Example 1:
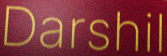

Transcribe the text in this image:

Darshil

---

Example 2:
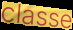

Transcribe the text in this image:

classe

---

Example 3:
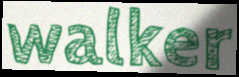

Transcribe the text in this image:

walker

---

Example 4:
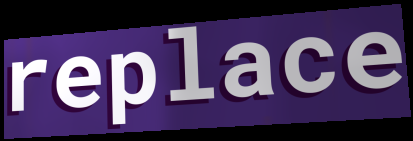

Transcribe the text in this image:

replace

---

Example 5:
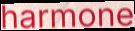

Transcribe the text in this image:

harmone